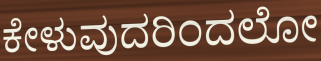
ಕೇಳುವುದರಿಂದಲೋ